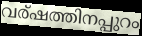
വര്ഷത്തിനപ്പുറം